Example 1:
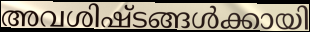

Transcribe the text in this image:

അവശിഷ്ടങ്ങൾക്കായി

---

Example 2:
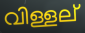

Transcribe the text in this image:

വിള്ളല്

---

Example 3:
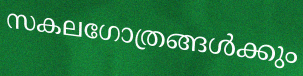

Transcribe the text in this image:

സകലഗോത്രങ്ങൾക്കും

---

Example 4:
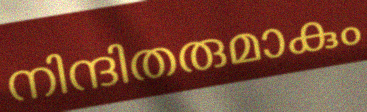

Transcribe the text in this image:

നിന്ദിതരുമാകും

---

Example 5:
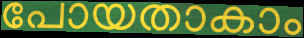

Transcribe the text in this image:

പോയതാകാം